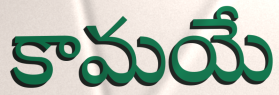
కామయే